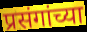
प्रसंगांच्या